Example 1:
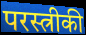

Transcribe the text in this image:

परस्त्रीकी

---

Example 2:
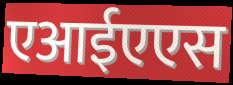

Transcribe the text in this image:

एआईएएस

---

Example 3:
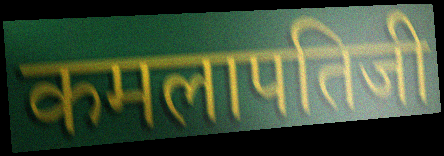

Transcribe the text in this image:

कमलापतिजी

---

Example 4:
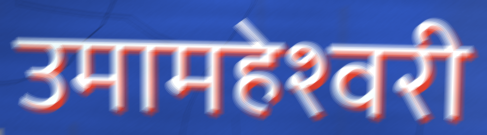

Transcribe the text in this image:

उमामहेश्वरी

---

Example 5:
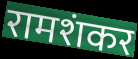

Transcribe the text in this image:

रामशंकर